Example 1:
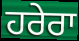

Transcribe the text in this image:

ਹਰੇਰਾ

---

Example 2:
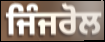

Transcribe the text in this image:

ਜਿੰਜਰੋਲ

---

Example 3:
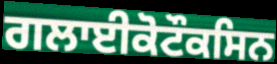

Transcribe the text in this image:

ਗਲਾਈਕੋਟੌਕਸਿਨ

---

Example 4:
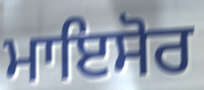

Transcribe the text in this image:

ਮਾਇਸੋਰ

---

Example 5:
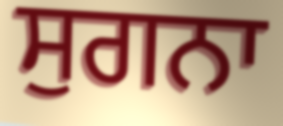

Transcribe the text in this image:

ਸੁਗਨਾ